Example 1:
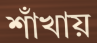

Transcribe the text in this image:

শাঁখায়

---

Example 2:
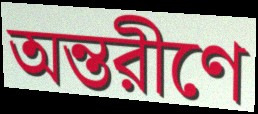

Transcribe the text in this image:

অন্তরীণে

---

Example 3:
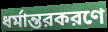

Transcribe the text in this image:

ধর্মান্তরকরণে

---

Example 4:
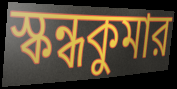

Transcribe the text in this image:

স্কন্ধকুমার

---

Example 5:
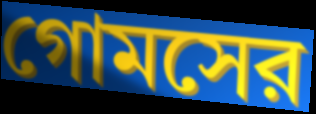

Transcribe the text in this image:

গোমসের